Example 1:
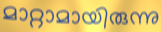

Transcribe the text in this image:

മാറ്റാമായിരുന്നു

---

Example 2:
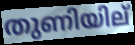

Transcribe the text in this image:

തുണിയില്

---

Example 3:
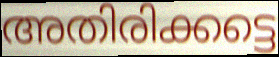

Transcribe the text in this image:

അതിരിക്കട്ടെ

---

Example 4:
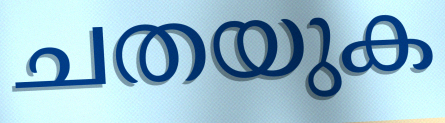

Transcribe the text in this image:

ചതയുക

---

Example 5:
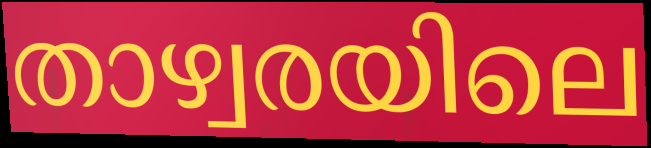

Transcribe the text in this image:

താഴ്വരയിലെ